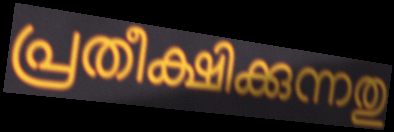
പ്രതീക്ഷിക്കുന്നതു